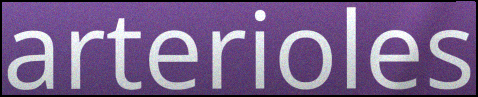
arterioles